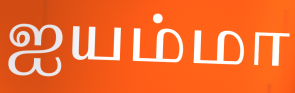
ஐயம்மா